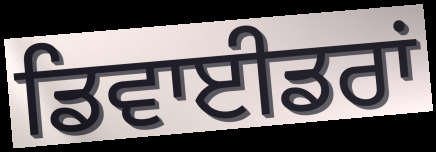
ਡਿਵਾਈਡਰਾਂ